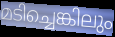
മടിച്ചെങ്കിലും